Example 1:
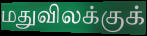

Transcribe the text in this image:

மதுவிலக்குக்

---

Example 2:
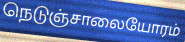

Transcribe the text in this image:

நெடுஞ்சாலையோரம்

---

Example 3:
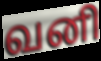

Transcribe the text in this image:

வனி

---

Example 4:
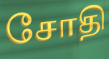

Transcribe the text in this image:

சோதி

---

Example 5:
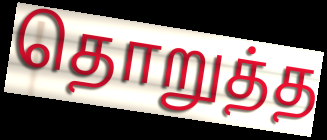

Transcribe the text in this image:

தொறுத்த